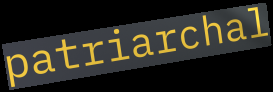
patriarchal